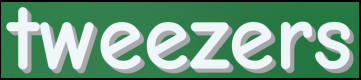
tweezers